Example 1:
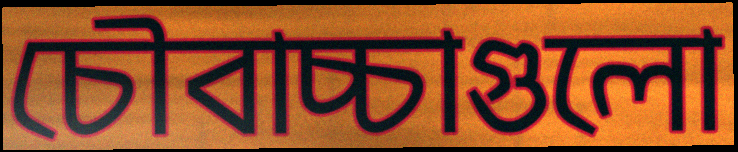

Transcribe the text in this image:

চৌবাচ্চাগুলো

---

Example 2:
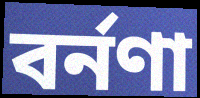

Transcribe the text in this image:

বর্নণা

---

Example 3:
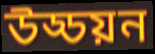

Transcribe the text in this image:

উড্ডয়ন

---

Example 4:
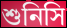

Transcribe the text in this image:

শুনিসি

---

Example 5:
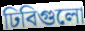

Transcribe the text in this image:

ঢিবিগুলো